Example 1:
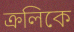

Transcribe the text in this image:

ক্রলিকে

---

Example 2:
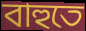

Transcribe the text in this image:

বাহুতে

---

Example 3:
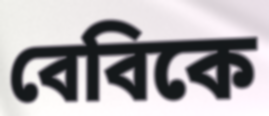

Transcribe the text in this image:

বেবিকে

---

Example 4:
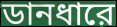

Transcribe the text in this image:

ডানধারে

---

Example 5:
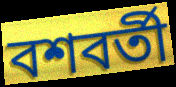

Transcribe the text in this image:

বশবর্তী